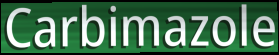
Carbimazole